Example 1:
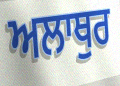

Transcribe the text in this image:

ਅਲਾਥੁਰ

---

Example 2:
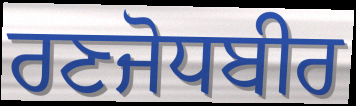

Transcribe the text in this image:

ਰਣਜੋਧਬੀਰ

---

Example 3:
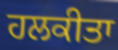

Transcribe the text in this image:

ਹਲਕੀਤਾ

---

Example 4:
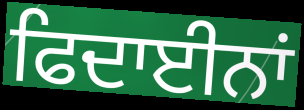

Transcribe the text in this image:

ਫਿਦਾਈਨਾਂ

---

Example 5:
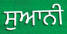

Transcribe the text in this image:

ਸੁਆਨੀ